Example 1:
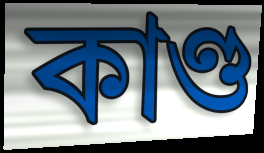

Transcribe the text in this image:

কাণ্ড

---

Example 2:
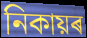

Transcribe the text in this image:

নিকায়ৰ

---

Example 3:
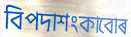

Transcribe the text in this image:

বিপদাশংকাবোৰ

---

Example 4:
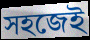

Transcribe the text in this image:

সহজেই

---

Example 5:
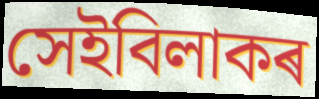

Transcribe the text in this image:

সেইবিলাকৰ